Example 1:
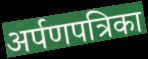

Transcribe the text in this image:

अर्पणपत्रिका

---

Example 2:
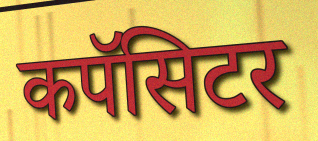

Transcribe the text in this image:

कपॅसिटर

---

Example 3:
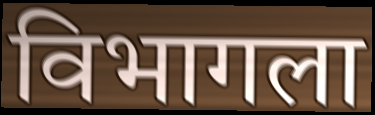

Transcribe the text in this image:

विभागला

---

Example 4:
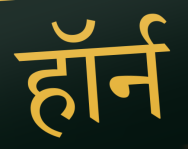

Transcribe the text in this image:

हॉर्न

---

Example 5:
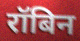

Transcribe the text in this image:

रॉबिन